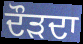
ਦੌੜਦਾ